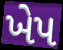
ખેપ